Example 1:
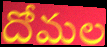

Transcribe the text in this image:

దోమల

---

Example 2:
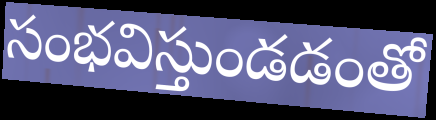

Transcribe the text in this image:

సంభవిస్తుండడంతో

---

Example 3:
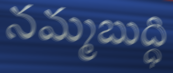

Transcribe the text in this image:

నమ్మబుద్ధి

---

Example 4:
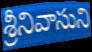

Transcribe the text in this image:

శ్రీనివాసుని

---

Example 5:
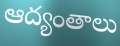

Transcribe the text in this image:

ఆద్యంతాలు